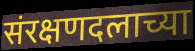
संरक्षणदलाच्या